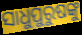
ସାଧୁପୁରୁଷଙ୍କୁ